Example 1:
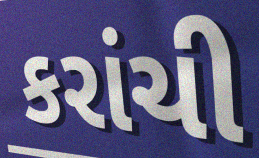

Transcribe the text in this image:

કરાંચી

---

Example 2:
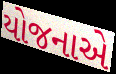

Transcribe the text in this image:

યોજનાએ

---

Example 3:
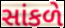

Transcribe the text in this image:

સાંકળે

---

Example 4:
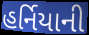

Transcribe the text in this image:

હર્નિયાની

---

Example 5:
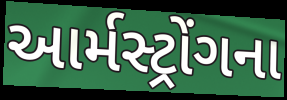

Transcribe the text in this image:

આર્મસ્ટ્રોંગના